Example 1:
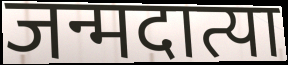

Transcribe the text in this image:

जन्मदात्या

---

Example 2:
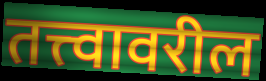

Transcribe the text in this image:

तत्त्वावरील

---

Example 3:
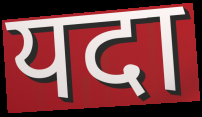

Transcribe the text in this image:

यदा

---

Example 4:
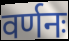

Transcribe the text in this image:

वर्णनः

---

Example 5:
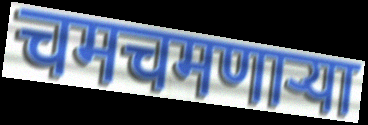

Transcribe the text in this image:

चमचमणाऱ्या